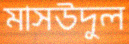
মাসউদুল